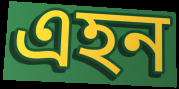
এহন